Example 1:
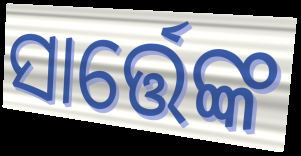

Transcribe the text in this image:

ସାର୍ତ୍ତେଙ୍କ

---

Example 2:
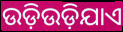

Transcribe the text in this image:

ଉଡ଼ିଉଡ଼ିଯାଏ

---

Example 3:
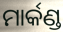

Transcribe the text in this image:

ମାର୍କଣ୍ଡ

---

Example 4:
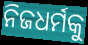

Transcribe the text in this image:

ନିଜଧର୍ମକୁ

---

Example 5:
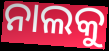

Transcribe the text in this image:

ନାଲକୁ